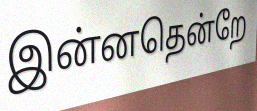
இன்னதென்றே